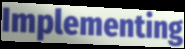
Implementing